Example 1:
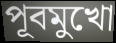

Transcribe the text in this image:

পূবমুখো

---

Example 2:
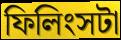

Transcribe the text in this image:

ফিলিংসটা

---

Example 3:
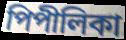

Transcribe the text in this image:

পিপীলিকা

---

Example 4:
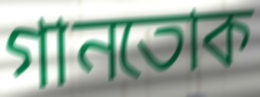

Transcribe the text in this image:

গানতোক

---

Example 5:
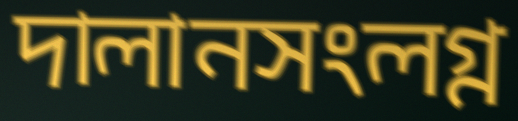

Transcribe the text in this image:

দালানসংলগ্ন